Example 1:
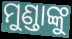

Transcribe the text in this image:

ମୁଣ୍ଡାଙ୍କୁ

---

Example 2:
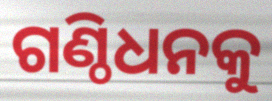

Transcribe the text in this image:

ଗଣ୍ଠିଧନକୁ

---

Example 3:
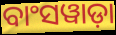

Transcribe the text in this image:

ବାଂସୱାଡ଼ା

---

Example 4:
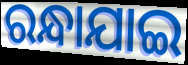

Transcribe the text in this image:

ରନ୍ଧାଯାଇ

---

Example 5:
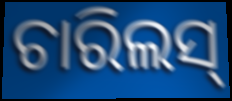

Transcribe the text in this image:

ଚାରିଲସ୍